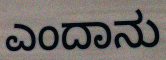
ಎಂದಾನು